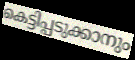
കെട്ടിപ്പടുക്കാനും